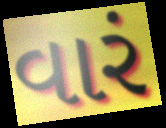
વારં